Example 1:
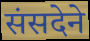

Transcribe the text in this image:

संसदेने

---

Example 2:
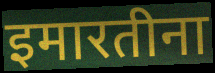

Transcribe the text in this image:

इमारतीना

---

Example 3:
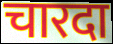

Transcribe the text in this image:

चारदा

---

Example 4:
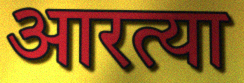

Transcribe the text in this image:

आरत्या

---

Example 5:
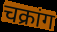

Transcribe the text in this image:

चक्रांग